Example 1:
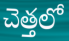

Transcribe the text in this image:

చెత్తలో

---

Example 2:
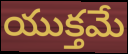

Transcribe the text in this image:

యుక్తమే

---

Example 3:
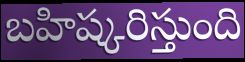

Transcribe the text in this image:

బహిష్కరిస్తుంది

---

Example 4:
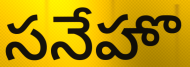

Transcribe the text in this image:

సనేహొ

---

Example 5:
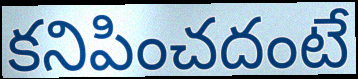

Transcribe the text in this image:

కనిపించదంటే